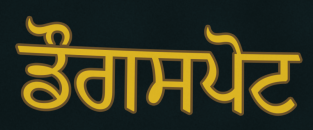
ਡੌਗਸਪੋਟ